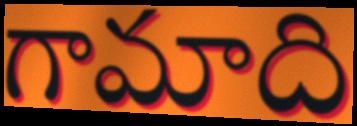
గామాది